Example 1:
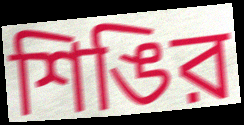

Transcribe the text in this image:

শিঙির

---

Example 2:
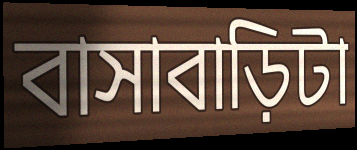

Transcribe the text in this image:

বাসাবাড়িটা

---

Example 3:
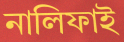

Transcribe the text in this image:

নালিফাই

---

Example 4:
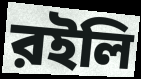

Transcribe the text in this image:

রইলি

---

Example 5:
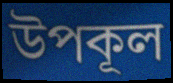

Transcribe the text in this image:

উপকূল